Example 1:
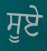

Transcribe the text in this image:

ਸੂਏ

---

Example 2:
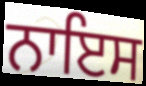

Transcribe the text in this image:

ਨਾਇਸ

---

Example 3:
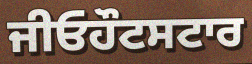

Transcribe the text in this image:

ਜੀਓਹੌਟਸਟਾਰ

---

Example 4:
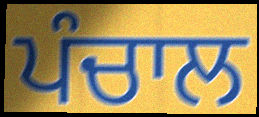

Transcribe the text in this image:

ਪੰਚਾਲ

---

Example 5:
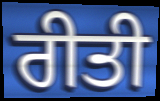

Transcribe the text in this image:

ਰੀਤੀ